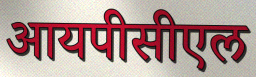
आयपीसीएल